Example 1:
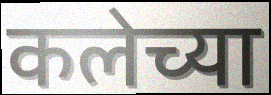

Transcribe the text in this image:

कलेच्या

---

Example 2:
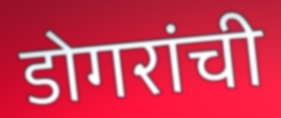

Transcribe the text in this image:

डोगरांची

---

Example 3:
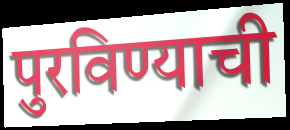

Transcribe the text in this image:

पुरविण्याची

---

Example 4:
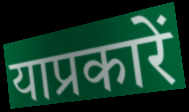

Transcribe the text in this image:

याप्रकारें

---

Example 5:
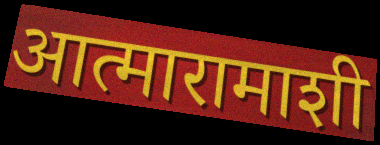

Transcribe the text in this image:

आत्मारामाशी